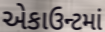
એકાઉન્ટમાં